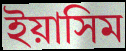
ইয়াসিম